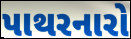
પાથરનારો